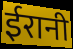
ईरानी